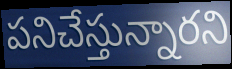
పనిచేస్తున్నారని